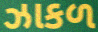
ઝાકળ